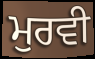
ਮੁਰਵੀ